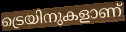
ട്രെയിനുകളാണ്